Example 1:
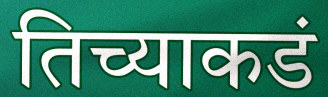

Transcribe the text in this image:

तिच्याकडं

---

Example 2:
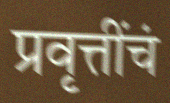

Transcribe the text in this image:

प्रवृत्तींचं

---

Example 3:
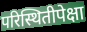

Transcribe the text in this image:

परिस्थितीपेक्षा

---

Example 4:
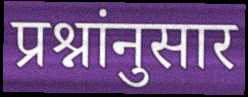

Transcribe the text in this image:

प्रश्नांनुसार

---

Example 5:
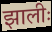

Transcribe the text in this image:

झालीः